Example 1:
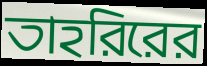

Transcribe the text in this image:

তাহরিরের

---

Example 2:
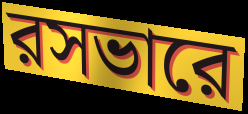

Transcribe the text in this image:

রসভারে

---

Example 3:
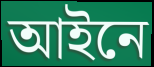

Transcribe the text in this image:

আইনে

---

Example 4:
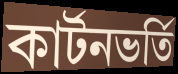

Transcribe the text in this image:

কার্টনভর্তি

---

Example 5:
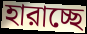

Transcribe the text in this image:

হারাচ্ছে